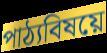
পাঠ্যবিষয়ে